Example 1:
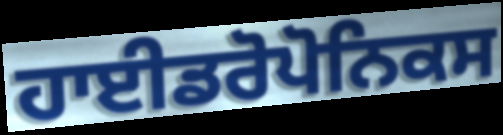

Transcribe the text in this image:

ਹਾਈਡਰੋਪੋਨਿਕਸ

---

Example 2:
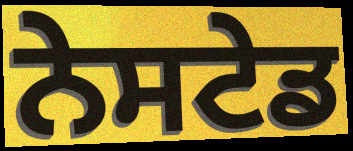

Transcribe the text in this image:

ਨੇਸਟੇਡ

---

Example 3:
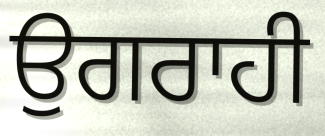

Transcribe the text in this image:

ਉਗਰਾਹੀ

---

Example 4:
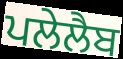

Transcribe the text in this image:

ਪਲੇਲੈਬ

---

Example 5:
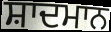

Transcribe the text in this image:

ਸ਼ਾਦਮਾਨ